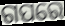
ଗପରେ